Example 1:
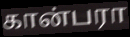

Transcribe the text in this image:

கான்பரா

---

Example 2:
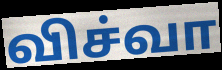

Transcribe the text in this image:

விச்வா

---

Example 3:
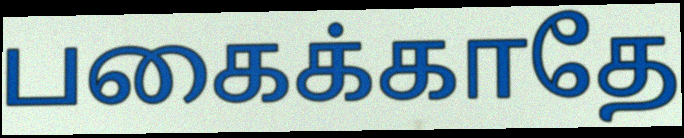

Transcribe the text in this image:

பகைக்காதே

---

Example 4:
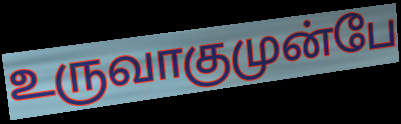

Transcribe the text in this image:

உருவாகுமுன்பே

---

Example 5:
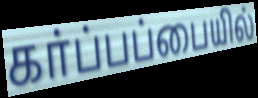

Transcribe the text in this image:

கர்ப்பப்பையில்